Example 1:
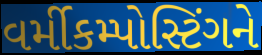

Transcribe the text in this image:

વર્મીકમ્પોસ્ટિંગને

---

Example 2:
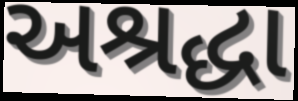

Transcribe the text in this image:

અશ્રદ્ધા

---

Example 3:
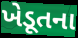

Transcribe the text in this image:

ખેડૂતના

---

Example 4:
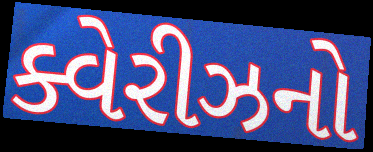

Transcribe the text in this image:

ક્વેરીઝનો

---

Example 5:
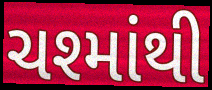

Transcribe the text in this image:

ચશ્માંથી